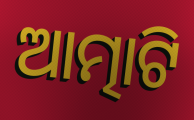
ଆତ୍ମାଟି